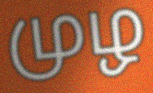
முழ